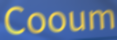
Cooum